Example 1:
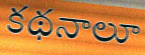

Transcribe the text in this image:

కథనాలూ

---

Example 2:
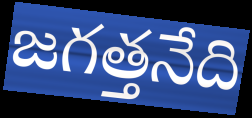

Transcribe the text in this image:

జగత్తనేది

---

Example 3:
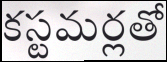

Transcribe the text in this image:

కస్టమర్లతో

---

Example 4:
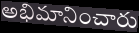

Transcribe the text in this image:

అభిమానించారు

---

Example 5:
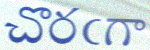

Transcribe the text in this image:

చొరఁగా